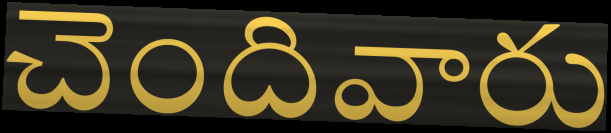
చెందివారు